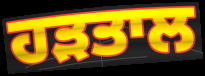
ਹੜਤਾਲ